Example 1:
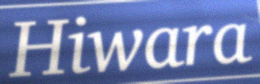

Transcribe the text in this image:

Hiwara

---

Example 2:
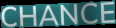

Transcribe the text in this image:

CHANCE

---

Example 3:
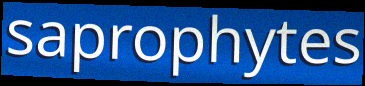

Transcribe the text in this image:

saprophytes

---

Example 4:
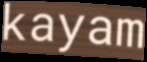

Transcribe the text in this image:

kayam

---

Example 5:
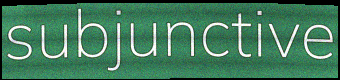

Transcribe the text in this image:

subjunctive